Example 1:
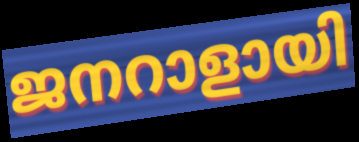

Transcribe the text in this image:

ജനറാളായി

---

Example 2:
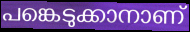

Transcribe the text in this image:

പങ്കെടുക്കാനാണ്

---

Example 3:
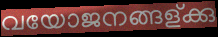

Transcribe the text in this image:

വയോജനങ്ങള്ക്കു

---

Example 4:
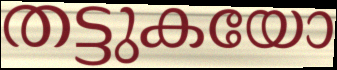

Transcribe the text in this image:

തട്ടുകയോ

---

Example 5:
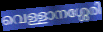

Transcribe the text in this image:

വെള്ളാനശ്ശേരി